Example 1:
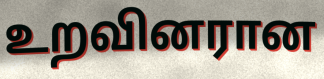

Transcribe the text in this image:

உறவினரான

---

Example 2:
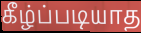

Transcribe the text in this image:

கீழ்ப்படியாத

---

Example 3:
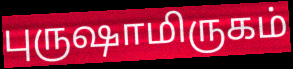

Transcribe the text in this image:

புருஷாமிருகம்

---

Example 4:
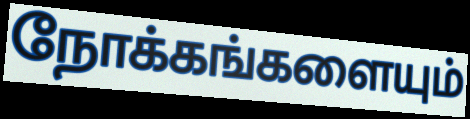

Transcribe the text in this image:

நோக்கங்களையும்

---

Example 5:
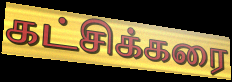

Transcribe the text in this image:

கட்சிக்கரை